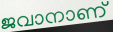
ജവാനാണ്